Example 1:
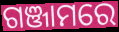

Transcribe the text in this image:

ଗଞ୍ଜାମରେ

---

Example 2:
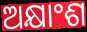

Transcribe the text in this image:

ଅକ୍ଷାଂଶ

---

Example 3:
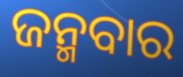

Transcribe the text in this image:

ଜନ୍ମବାର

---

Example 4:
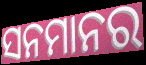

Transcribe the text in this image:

ସନମାନର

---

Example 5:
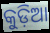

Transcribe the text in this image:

କୁଡ଼ିଆ